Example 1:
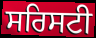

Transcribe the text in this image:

ਸਰਿਸਟੀ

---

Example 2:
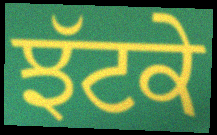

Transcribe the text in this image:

ਝੱਟਕੇ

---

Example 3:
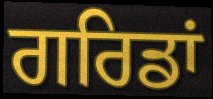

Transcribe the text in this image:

ਗਰਿਡਾਂ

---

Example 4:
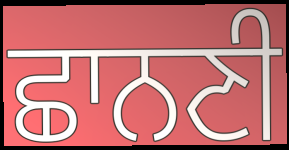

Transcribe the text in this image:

ਛਾਨਣੀ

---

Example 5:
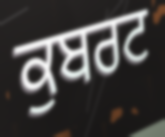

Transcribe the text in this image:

ਕੁਬਰਟ